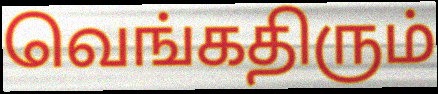
வெங்கதிரும்